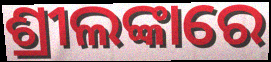
ଶ୍ରୀଲଙ୍କାରେ